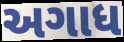
અગાધ